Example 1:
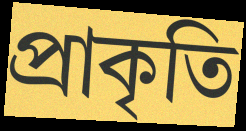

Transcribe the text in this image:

প্ৰাকৃতি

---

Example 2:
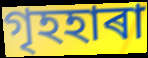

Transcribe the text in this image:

গৃহহাৰা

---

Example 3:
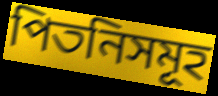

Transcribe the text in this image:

পিতনিসমূহ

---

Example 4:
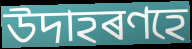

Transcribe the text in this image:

উদাহৰণহে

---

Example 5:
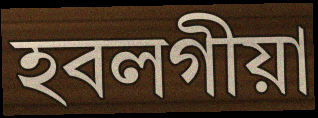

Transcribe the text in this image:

হবলগীয়া